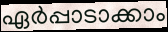
ഏർപ്പാടാക്കാം